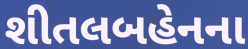
શીતલબહેનના